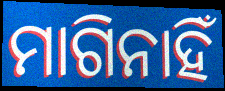
ମାଗିନାହିଁ